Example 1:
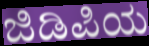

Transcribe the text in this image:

ಜಿಡಿಪಿಯ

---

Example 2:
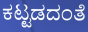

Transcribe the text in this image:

ಕಟ್ಟಡದಂತೆ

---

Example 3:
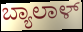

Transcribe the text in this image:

ಬ್ಯಾಲಾಳ್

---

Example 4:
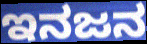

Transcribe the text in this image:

ಇನಜನ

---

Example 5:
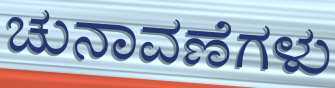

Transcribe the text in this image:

ಚುನಾವಣೆಗಳು